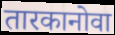
तारकानोवा